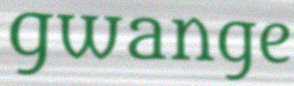
gwange